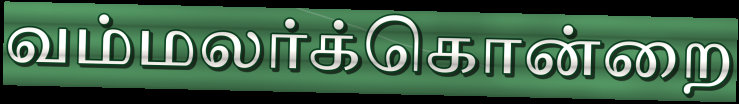
வம்மலர்க்கொன்றை